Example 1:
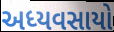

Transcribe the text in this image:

અધ્યવસાયો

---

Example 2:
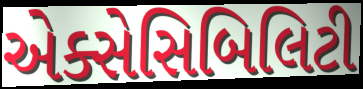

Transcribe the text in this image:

એક્સેસિબિલિટી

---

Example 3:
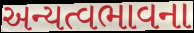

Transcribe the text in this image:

અન્યત્વભાવના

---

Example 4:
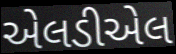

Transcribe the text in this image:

એલડીએલ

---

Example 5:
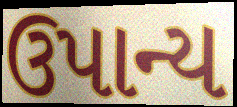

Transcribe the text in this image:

ઉપાન્ય